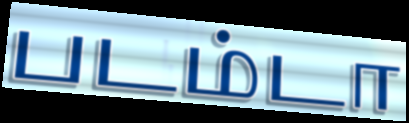
படம்டா